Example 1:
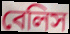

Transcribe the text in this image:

বেলিস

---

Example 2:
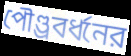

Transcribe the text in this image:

পৌণ্ড্রবর্ধনের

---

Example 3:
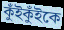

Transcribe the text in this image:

কুঁইকুঁইকে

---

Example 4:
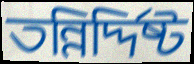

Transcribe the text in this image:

তন্নির্দ্দিষ্ট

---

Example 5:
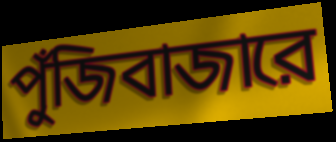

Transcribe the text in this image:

পুঁজিবাজারে